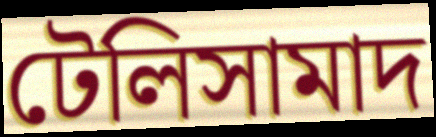
টেলিসামাদ